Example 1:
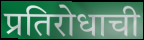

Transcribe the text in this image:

प्रतिरोधाची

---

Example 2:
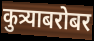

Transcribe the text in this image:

कुत्र्याबरोबर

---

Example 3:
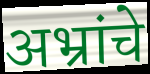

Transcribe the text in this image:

अभ्रांचे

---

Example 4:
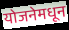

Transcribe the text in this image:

योजनेमधून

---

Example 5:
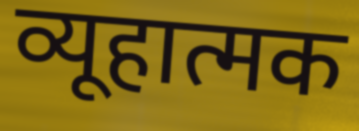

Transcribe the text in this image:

व्यूहात्मक